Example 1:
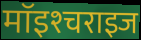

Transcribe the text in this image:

मॉइश्चराइज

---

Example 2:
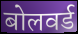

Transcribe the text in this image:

बोलवर्ड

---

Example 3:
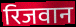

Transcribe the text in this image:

रिजवान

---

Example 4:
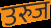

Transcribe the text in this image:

उरुज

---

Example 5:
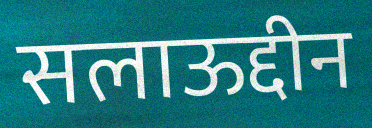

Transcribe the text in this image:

सलाऊद्दीन